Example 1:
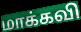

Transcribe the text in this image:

மாக்கவி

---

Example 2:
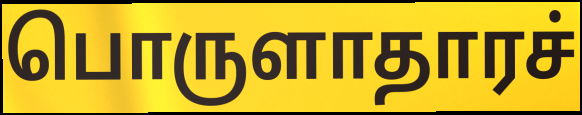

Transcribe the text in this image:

பொருளாதாரச்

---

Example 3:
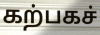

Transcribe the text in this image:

கற்பகச்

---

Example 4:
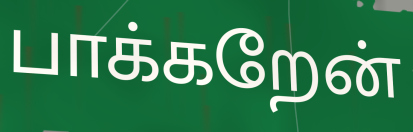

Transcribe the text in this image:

பாக்கறேன்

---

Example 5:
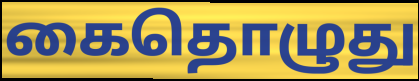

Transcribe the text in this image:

கைதொழுது